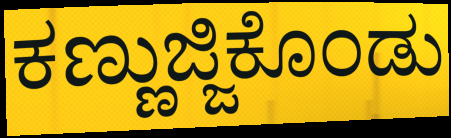
ಕಣ್ಣುಜ್ಜಿಕೊಂಡು